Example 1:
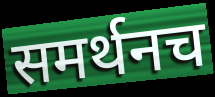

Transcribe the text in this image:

समर्थनच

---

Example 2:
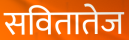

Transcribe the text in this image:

सवितातेज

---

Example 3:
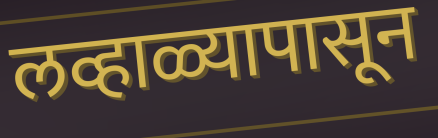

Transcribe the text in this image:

लव्हाळ्यापासून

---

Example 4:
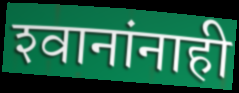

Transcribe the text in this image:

श्वानांनाही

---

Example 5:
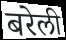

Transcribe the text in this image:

बरेली